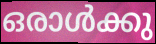
ഒരാൾക്കു